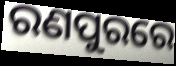
ରଣପୁରରେ